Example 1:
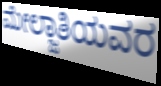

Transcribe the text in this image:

ಮೇಲ್ಜಾತಿಯವರ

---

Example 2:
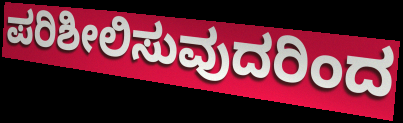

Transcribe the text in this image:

ಪರಿಶೀಲಿಸುವುದರಿಂದ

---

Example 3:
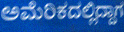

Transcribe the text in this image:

ಅಮೆರಿಕದಲ್ಲಿದ್ದಾಗ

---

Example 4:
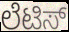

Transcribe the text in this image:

ಲೆಟಿಸ್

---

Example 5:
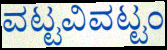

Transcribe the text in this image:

ವಟ್ಟವಿವಟ್ಟಂ